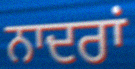
ਨਾਦਰਾਂ